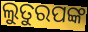
ଲୁତୁରପଙ୍କ